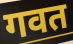
गवत